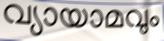
വ്യായാമവും